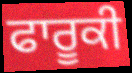
ਫਾਰੂਕੀ